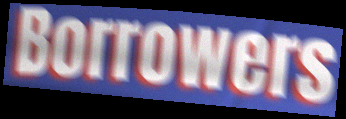
Borrowers